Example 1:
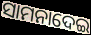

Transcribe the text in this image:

ସାମନାଦେଇ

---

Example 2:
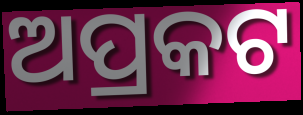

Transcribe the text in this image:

ଅପ୍ରକଟ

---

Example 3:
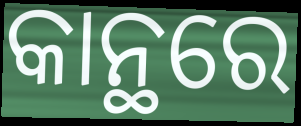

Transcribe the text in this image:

କାନ୍ଥରେ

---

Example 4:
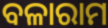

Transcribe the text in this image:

ବଳାରାମ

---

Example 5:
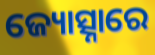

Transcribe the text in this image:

ଜ୍ୟୋତ୍ସ୍ନାରେ